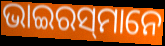
ଭାଇରସ୍‌ମାନେ